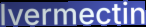
Ivermectin